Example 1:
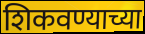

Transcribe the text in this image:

शिकवण्याच्या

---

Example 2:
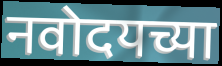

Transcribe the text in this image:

नवोदयच्या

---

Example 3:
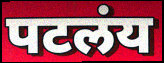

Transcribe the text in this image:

पटलंय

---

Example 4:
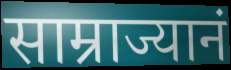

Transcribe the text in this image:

साम्राज्यानं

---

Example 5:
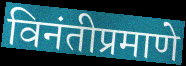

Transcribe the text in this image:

विनंतीप्रमाणे